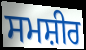
ਸਮਸ਼ੀਰ